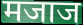
मजाज